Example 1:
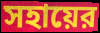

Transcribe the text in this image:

সহায়ের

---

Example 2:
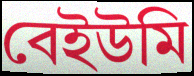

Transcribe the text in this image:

বেইউমি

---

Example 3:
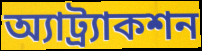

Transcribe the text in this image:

অ্যাট্র্যাকশন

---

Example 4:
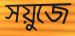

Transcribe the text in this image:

সয়ুজে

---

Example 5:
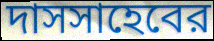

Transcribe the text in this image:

দাসসাহেবের